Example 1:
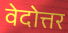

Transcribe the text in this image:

वेदोत्तर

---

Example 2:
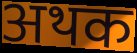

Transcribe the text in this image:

अथक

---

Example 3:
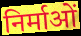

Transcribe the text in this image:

निर्माओं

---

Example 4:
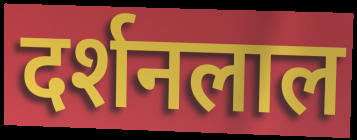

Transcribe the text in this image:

दर्शनलाल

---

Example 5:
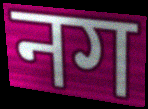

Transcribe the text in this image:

नग